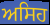
ਅਸਿਹ